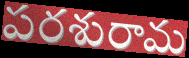
పరశురామ